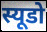
स्यूडो